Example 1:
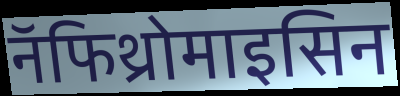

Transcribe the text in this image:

नॅफिथ्रोमाइसिन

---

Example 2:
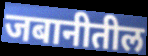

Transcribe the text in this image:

जबानीतील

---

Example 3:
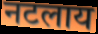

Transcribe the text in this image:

नटलाय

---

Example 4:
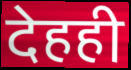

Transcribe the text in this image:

देहही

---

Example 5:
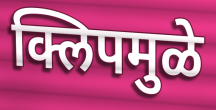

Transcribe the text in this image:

क्लिपमुळे